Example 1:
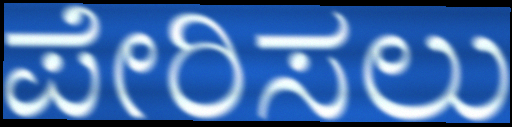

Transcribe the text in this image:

ಪೇರಿಸಲು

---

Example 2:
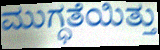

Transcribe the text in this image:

ಮುಗ್ಧತೆಯಿತ್ತು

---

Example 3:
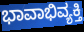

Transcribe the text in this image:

ಭಾವಾಭಿವ್ಯಕ್ತಿ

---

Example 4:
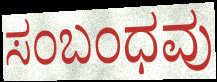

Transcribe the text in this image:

ಸಂಬಂಧವು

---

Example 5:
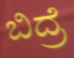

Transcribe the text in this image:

ಬಿದ್ರೆ